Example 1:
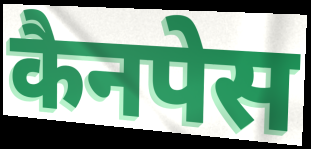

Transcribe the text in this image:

कैनपेस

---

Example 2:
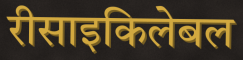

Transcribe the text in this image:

रीसाइकिलेबल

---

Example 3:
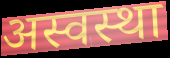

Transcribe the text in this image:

अस्वस्था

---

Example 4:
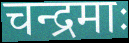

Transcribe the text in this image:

चन्द्रमाः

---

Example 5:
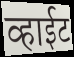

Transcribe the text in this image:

व्हाईट